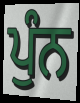
ਪੁੰਨ